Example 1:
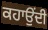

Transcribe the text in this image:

ਕਹਾਉਂਦੀ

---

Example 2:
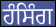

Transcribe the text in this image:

ਹੰਸਿੰਗ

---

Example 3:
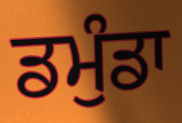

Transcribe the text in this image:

ਡਮੁੰਡਾ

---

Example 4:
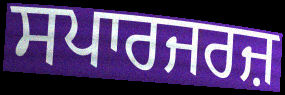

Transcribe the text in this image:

ਸਪਾਰਜਰਜ਼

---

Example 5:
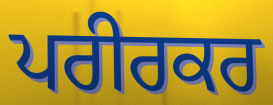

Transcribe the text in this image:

ਪਰੀਰਕਰ